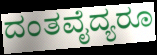
ದಂತವೈದ್ಯರೂ